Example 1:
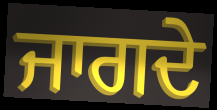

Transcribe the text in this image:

ਜਾਗਦੇ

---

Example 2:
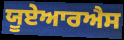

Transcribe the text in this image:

ਯੂਏਆਰਐਸ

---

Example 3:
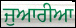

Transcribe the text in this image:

ਜੁਆਰੀਆ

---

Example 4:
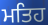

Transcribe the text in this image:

ਮਤਿਹ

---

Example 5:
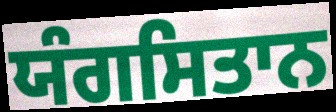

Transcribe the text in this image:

ਯੰਗਸਿਤਾਨ